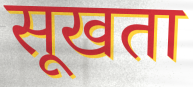
सूखता